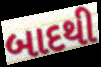
બાદથી